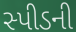
સ્પીડની